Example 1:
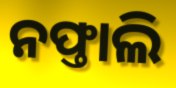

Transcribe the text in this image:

ନଫ୍ତାଲି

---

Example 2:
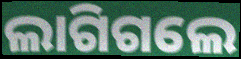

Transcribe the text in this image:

ଲାଗିଗଲେ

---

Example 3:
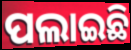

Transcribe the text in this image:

ପଲାଇଛି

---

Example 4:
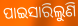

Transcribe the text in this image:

ପାଇସାରିଲୁଣି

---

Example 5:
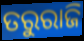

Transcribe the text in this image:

ତରୁରାଜି